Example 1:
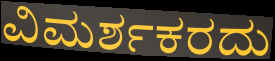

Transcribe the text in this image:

ವಿಮರ್ಶಕರದು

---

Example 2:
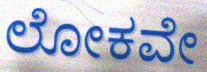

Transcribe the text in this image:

ಲೋಕವೇ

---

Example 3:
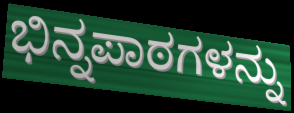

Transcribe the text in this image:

ಭಿನ್ನಪಾಠಗಳನ್ನು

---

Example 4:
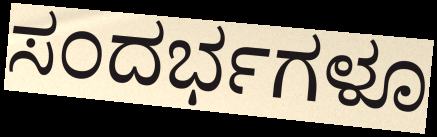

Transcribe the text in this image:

ಸಂದರ್ಭಗಳೂ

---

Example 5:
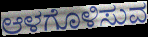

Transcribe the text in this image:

ಆಳಗೊಳಿಸುವ